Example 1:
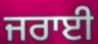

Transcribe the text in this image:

ਜਰਾਈ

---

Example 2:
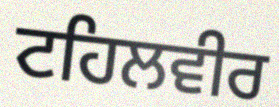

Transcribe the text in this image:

ਟਹਿਲਵੀਰ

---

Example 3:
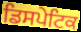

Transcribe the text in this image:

ਡਿਸਪੇਟਿਕ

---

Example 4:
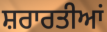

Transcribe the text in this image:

ਸ਼ਰਾਰਤੀਆਂ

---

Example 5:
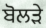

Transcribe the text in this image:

ਬੋਲੜੇ